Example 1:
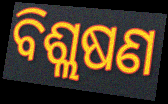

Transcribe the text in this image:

ବିଶ୍ଲଷଣ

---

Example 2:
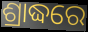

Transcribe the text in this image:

ଶ୍ରାଦ୍ଧରେ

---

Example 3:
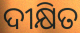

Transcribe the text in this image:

ଦୀକ୍ଷିତ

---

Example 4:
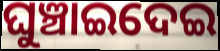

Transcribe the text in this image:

ଘୁଞ୍ଚାଇଦେଇ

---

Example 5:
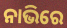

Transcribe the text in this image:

ନାଭିରେ